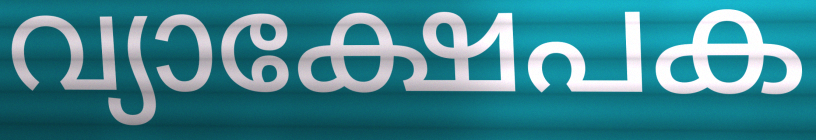
വ്യാക്ഷേപക